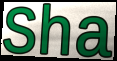
Sha